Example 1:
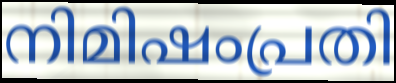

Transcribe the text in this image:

നിമിഷംപ്രതി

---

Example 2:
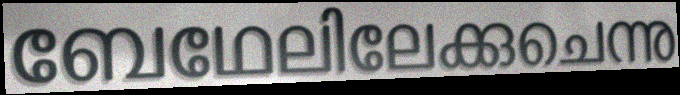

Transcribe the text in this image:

ബേഥേലിലേക്കുചെന്നു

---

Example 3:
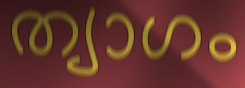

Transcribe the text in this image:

ത്യാഗം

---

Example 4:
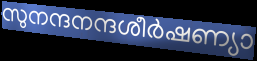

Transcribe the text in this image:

സുനന്ദനന്ദശീർഷണ്യാ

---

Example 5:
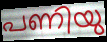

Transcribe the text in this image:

പണിയു